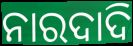
ନାରଦାଦି